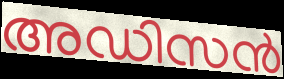
അഡിസൻ